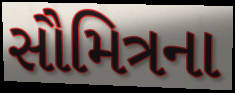
સૌમિત્રના